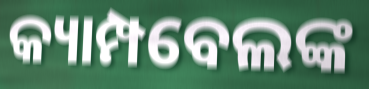
କ୍ୟାମ୍ପବେଲଙ୍କ